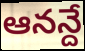
ఆనన్దే